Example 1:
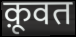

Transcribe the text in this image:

क़ूवत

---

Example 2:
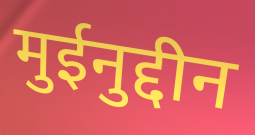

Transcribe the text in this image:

मुईनुद्दीन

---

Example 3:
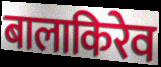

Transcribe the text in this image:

बालाकिरेव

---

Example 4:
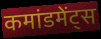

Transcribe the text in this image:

कमांडमेंट्स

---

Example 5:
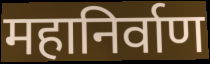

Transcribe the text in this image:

महानिर्वाण